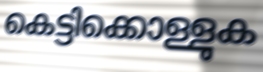
കെട്ടിക്കൊള്ളുക